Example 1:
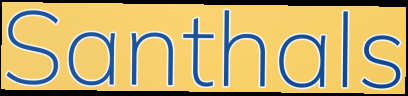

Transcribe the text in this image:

Santhals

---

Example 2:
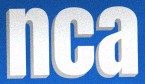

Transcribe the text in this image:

nca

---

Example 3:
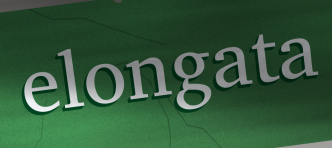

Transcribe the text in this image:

elongata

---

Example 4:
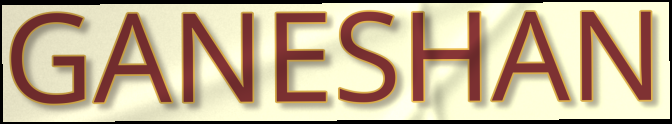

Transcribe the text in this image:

GANESHAN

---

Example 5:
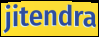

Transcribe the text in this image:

jitendra